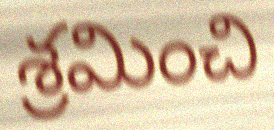
శ్రమించి